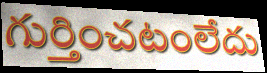
గుర్తించటంలేదు